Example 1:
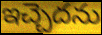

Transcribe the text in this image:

ఇచ్చెదను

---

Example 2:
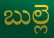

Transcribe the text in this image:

బుల్లె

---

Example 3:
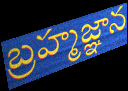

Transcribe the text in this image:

బ్రహ్మజ్ఞాన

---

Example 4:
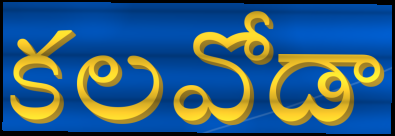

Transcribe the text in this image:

కలవోడా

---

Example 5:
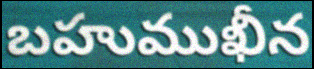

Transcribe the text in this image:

బహుముఖీన